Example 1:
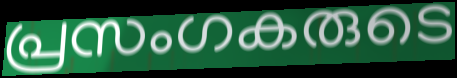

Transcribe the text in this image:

പ്രസംഗകരുടെ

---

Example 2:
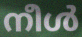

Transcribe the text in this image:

നീൾ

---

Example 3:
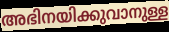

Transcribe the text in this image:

അഭിനയിക്കുവാനുള്ള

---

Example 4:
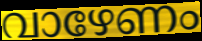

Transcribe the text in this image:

വാഴേണം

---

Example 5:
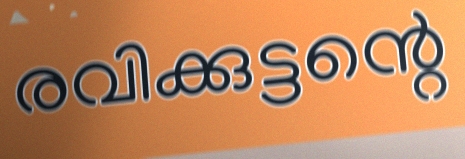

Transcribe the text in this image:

രവിക്കുട്ടന്റെ